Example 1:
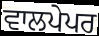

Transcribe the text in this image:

ਵਾਲਪੇਪਰ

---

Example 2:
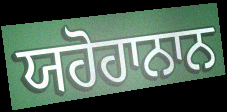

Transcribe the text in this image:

ਯਹੋਹਾਨਾਨ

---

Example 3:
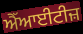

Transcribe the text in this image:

ਐੱਆਈਟੀਜ਼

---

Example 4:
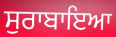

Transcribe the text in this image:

ਸੁਰਾਬਾਇਆ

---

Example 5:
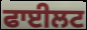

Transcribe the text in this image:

ਫਾਈਲਟ